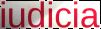
iudicia